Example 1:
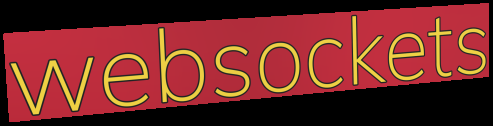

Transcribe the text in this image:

websockets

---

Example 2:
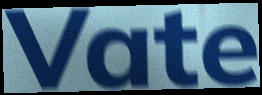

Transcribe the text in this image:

Vate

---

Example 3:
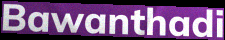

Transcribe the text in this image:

Bawanthadi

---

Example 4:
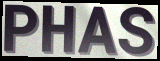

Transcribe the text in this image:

PHAS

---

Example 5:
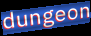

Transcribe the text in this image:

dungeon